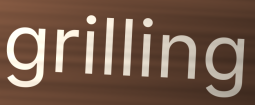
grilling